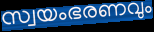
സ്വയംഭരണവും